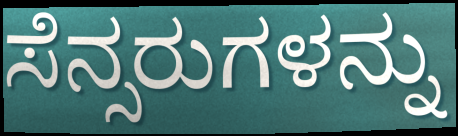
ಸೆನ್ಸರುಗಳನ್ನು